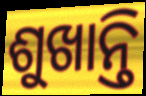
ଶୁଖାନ୍ତି